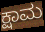
ಕ್ಷಾಮ